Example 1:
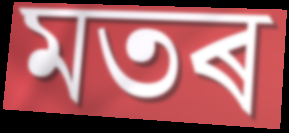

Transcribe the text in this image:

মতৰ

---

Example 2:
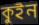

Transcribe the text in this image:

কুইন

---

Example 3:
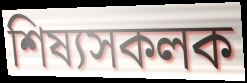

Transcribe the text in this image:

শিষ্যসকলক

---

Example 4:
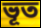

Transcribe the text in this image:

ভূত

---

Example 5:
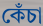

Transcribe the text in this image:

কেঁচা